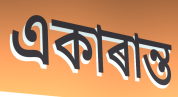
একাৰান্ত